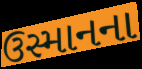
ઉસ્માનના